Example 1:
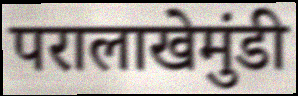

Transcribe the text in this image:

परालाखेमुंडी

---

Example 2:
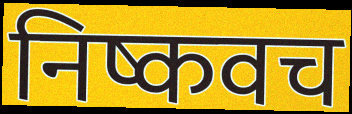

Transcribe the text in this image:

निष्कवच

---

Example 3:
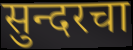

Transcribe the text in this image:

सुन्दरचा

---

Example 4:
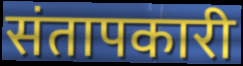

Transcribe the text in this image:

संतापकारी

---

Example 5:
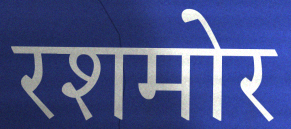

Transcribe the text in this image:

रशमोर